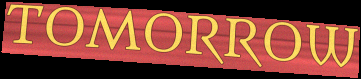
TOMORROW